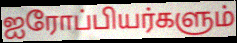
ஐரோப்பியர்களும்